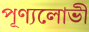
পূণ্যলোভী